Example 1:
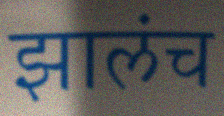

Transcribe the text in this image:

झालंच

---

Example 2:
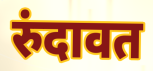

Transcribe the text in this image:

रुंदावत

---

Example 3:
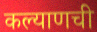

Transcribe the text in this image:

कल्याणची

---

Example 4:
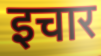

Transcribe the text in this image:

इचार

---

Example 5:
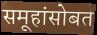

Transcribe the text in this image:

समूहांसोबत